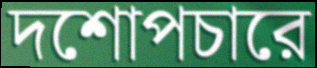
দশোপচারে